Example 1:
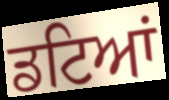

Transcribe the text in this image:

ਡਟਿਆਂ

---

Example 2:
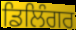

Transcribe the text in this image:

ਡਿਲਿੰਗਰ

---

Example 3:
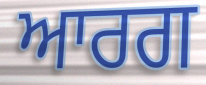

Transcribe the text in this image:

ਆਰਗ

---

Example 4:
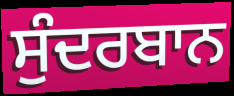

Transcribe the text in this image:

ਸੁੰਦਰਬਾਨ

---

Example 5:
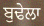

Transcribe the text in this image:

ਬੁਢੇਲਾ